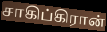
சாகிப்கிரான்